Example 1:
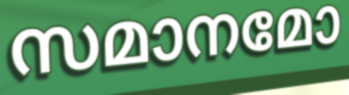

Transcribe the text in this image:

സമാനമോ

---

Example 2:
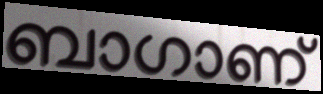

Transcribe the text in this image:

ബാഗാണ്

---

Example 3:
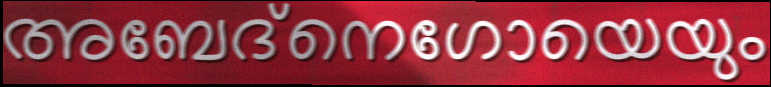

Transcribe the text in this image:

അബേദ്നെഗോയെയും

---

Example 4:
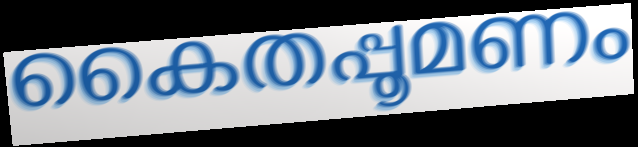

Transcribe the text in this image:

കൈതപ്പൂമണം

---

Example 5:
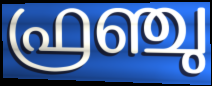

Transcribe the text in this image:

ഫ്രഞ്ചു